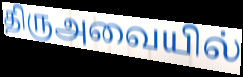
திருஅவையில்